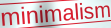
minimalism